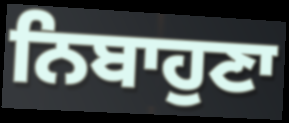
ਨਿਬਾਹੁਣਾ